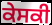
ਕੇਸਕੀ